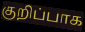
குறிப்பாக